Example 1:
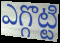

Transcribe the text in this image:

ఎగ్గొట్టి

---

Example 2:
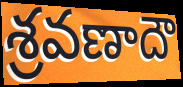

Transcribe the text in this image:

శ్రవణాదౌ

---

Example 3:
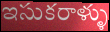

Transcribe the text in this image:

ఇసుకరాళ్ళు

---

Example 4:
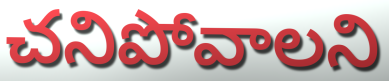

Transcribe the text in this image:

చనిపోవాలని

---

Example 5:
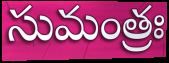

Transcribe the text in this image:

సుమంత్రః